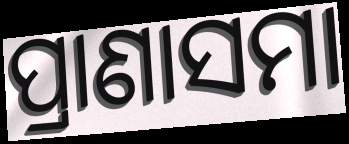
ପ୍ରାଣାସମା